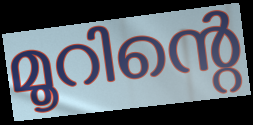
മൂറിന്റെ